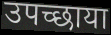
उपच्छाया